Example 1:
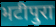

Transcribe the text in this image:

भटीपुरा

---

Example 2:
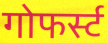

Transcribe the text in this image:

गोफर्स्ट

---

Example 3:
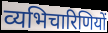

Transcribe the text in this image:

व्यभिचारिणियों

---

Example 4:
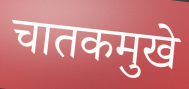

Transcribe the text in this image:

चातकमुखे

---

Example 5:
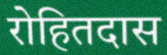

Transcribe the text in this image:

रोहितदास